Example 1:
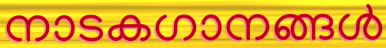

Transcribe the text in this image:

നാടകഗാനങ്ങൾ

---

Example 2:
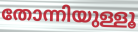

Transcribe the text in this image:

തോന്നിയുള്ളൂ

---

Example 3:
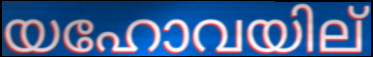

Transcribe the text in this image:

യഹോവയില്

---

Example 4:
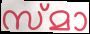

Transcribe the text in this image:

സ്മാ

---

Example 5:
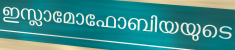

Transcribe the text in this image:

ഇസ്ലാമോഫോബിയയുടെ